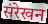
संरेखन